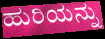
ಹುರಿಯನ್ನು